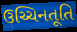
ઉચ્ચિનતૂતિ